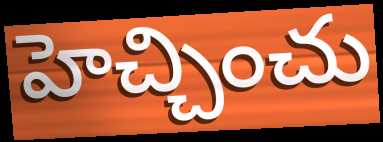
హెచ్చించు